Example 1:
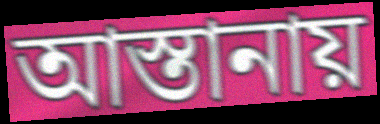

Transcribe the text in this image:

আস্তানায়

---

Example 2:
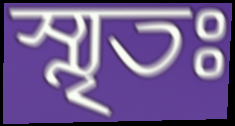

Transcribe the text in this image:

স্মৃতঃ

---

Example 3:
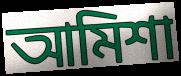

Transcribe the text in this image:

আমিশা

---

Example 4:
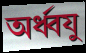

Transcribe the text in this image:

অর্ধ্বযু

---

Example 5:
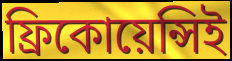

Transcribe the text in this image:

ফ্রিকোয়েন্সিই